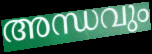
അന്ധവും